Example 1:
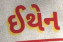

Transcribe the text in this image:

ઈથેન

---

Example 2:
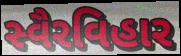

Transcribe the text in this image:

સ્વૈરવિહાર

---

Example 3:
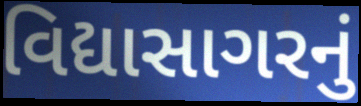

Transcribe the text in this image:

વિદ્યાસાગરનું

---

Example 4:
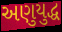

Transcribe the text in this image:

અણુયુદ્ધ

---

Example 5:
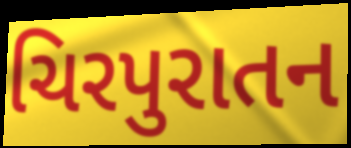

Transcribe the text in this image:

ચિરપુરાતન